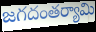
జగదంతర్యామి